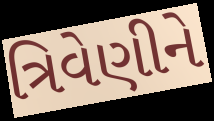
ત્રિવેણીને